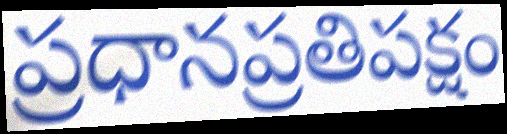
ప్రధానప్రతిపక్షం